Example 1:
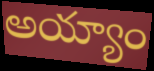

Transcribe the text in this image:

అయ్యాం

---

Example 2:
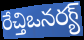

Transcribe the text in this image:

రేచ్తిఒనర్య్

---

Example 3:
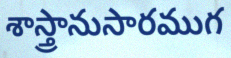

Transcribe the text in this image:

శాస్త్రానుసారముగ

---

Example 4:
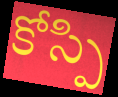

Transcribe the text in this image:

కోస్పి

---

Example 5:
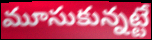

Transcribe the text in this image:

మూసుకున్నట్టే